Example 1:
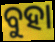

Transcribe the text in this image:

ବୁହା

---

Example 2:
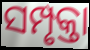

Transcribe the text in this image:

ସମ୍ପୃକ୍ତା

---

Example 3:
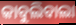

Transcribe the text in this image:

କାବୁଲିବାଲା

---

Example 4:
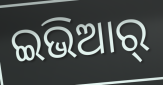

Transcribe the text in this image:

ଇଭିଆର୍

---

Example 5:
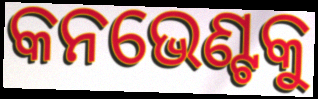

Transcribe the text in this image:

କନଭେଣ୍ଟକୁ